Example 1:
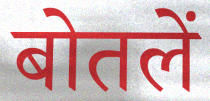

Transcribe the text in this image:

बोतलें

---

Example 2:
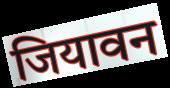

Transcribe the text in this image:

जियावन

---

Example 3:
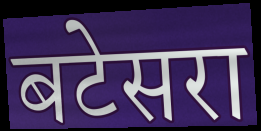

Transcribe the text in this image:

बटेसरा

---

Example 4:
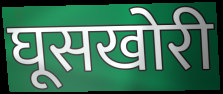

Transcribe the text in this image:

घूसखोरी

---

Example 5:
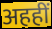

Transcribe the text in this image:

अहहीं